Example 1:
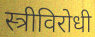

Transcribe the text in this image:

स्त्रीविरोधी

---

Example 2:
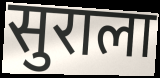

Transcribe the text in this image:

सुराला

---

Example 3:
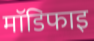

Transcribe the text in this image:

मॉडिफाइ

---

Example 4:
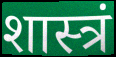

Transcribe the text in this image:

शास्त्रं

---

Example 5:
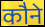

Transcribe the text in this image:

कौने